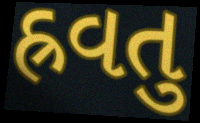
હ્રવતુ